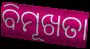
ବିମୂଖତା